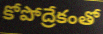
కోపోద్రేకంతో